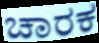
ಚಾರಕ